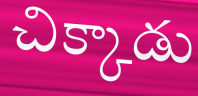
చిక్కాడు